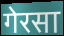
गेरसा